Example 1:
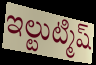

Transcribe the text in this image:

ఇల్టుట్మిష్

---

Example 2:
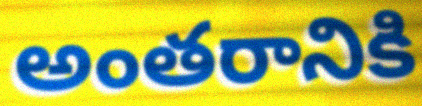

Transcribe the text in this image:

అంతరానికి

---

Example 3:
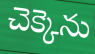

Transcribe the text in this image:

చెక్కెను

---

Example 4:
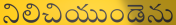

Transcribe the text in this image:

నిలిచియుండెను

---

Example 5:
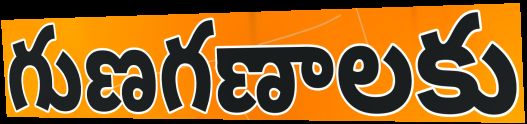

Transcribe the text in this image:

గుణగణాలకు